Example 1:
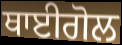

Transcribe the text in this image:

ਥਾਈਗੋਲ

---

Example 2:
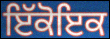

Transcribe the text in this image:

ਇੱਕੋਇਕ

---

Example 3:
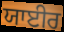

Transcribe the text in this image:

ਯਾਈਰ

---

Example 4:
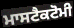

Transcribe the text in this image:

ਮਾਸਟੈਕਟੋਮੀ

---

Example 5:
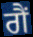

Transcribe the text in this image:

ਗੈਂ